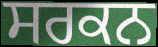
ਸਰਕਨ